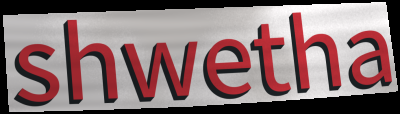
shwetha